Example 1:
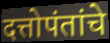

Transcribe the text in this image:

दत्तोपंतांचे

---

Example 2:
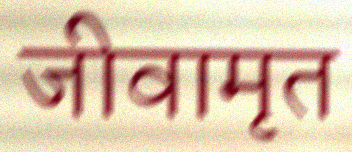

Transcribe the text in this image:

जीवामृत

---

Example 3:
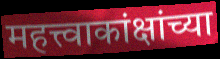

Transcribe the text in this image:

महत्त्वाकांक्षांच्या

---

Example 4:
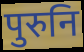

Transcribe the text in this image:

पुरुनि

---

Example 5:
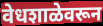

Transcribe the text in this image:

वेधशाळेवरून